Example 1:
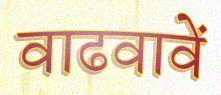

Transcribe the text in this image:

वाढवावें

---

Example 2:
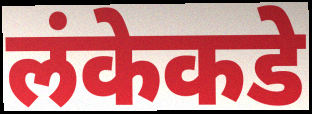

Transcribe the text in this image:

लंकेकडे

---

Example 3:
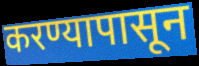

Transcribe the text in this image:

करण्यापासून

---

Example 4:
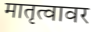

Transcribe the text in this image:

मातृत्वावर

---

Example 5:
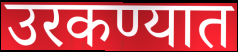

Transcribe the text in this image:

उरकण्यात